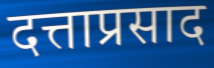
दत्ताप्रसाद